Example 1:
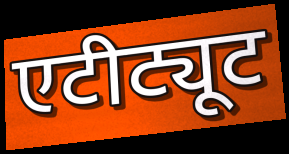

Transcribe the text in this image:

एटीट्यूट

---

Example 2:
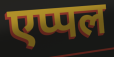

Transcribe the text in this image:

एप्पल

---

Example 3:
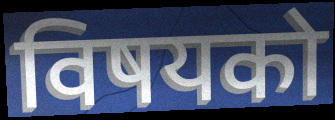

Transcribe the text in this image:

विषयको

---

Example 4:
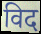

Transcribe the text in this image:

विद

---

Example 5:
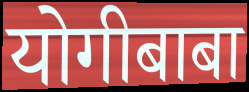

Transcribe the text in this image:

योगीबाबा